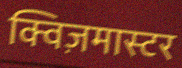
क्विज़मास्टर